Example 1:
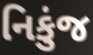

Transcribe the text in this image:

નિકુંજ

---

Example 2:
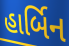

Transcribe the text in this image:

હાર્બિન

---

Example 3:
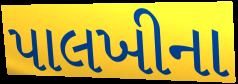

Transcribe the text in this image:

પાલખીના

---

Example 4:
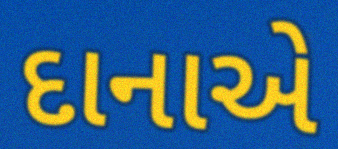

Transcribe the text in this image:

દાનાએ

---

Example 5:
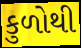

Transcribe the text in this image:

કુળોથી